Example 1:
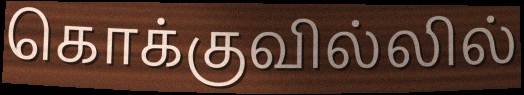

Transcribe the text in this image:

கொக்குவில்லில்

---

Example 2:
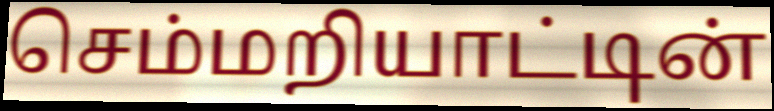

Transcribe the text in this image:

செம்மறியாட்டின்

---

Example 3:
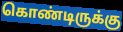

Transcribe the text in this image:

கொண்டிருக்கு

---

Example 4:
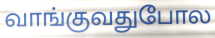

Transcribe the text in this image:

வாங்குவதுபோல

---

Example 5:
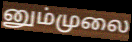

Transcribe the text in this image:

னும்முலை